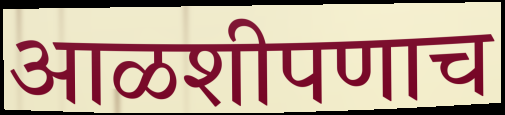
आळशीपणाच